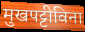
मुखपट्टीविना